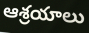
ఆశ్రయాలు